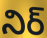
నిర్